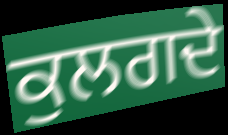
ਕੁਲਗਦੇ